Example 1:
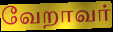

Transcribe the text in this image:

வேறாவர்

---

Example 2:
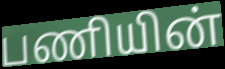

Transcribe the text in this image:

பணியின்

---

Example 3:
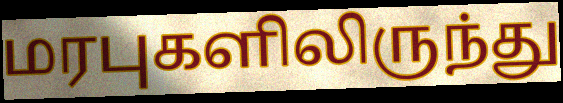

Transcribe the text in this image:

மரபுகளிலிருந்து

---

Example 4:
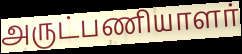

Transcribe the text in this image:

அருட்பணியாளர்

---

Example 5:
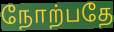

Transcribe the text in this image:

நோற்பதே